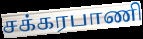
சக்கரபாணி